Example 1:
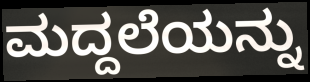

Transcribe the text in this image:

ಮದ್ದಲೆಯನ್ನು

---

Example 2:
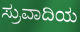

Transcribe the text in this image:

ಸ್ರುವಾದಿಯ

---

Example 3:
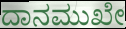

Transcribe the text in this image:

ದಾನಮುಖೇ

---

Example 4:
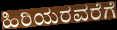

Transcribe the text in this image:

ಹಿರಿಯರವರೆಗೆ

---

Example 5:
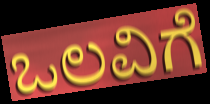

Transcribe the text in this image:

ಒಲವಿಗೆ